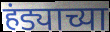
हंड्याच्या